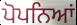
ਪੋਪਨਿਆਂ